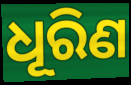
ଧୂରିଣ